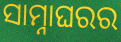
ସାମ୍ନାଘରର